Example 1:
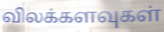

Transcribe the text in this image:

விலக்களவுகள்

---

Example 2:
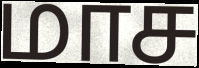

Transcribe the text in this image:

மாச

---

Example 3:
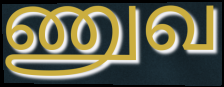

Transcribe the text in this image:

ணுவ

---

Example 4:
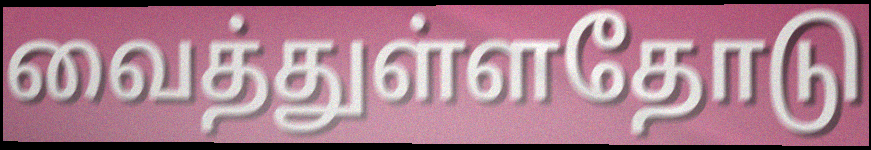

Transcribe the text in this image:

வைத்துள்ளதோடு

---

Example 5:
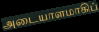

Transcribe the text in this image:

அடையாளமாகிப்